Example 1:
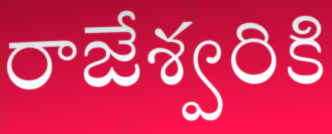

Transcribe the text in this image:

రాజేశ్వరికి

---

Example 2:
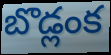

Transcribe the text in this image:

బొడ్లంక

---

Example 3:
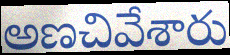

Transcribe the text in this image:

అణచివేశారు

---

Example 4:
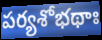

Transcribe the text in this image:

పర్యశోభథాః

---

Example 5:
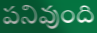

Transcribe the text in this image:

పనివుంది